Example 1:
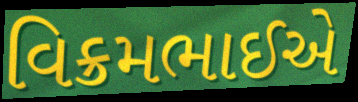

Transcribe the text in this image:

વિક્રમભાઈએ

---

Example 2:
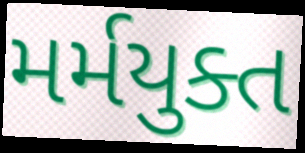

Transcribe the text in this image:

મર્મયુક્ત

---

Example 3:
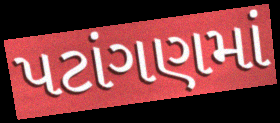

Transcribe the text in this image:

પટાંગણમાં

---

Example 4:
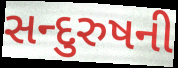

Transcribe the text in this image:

સન્દુરુષની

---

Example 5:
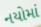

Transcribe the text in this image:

નયોમાં